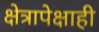
क्षेत्रापेक्षाही